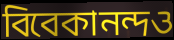
বিবেকানন্দও